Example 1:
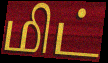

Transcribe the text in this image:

மிட்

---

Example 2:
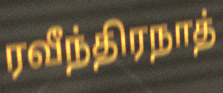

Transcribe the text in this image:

ரவீந்திரநாத்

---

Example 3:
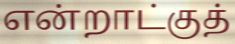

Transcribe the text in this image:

என்றாட்குத்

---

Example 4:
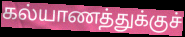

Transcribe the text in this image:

கல்யாணத்துக்குச்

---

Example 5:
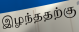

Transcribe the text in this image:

இழந்ததற்கு